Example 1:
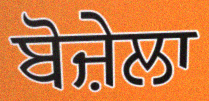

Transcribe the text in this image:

ਬੋਜ਼ੇਲਾ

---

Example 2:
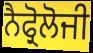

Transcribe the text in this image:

ਨੈਫ੍ਰੋਲੋਜੀ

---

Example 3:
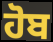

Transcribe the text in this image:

ਹੋਬ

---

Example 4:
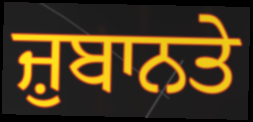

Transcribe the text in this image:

ਜ਼ੁਬਾਨਤੇ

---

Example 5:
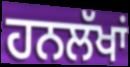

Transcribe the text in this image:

ਹਨਲੱਖਾਂ